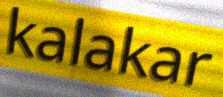
kalakar